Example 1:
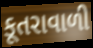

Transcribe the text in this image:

કૂતરાવાળી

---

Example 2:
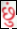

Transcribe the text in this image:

છું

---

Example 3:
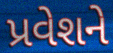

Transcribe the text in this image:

પ્રવેશને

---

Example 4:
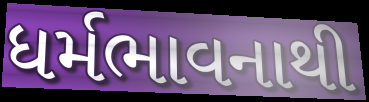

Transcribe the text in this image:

ધર્મભાવનાથી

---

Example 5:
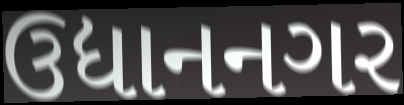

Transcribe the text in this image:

ઉદ્યાનનગર